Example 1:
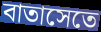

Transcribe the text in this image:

বাতাসেতে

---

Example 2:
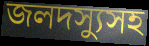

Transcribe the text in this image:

জলদস্যুসহ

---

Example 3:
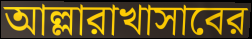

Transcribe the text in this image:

আল্লারাখাসাবের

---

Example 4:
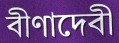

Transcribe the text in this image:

বীণাদেবী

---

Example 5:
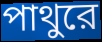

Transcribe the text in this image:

পাথুরে